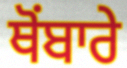
ਥੋਂਬਾਰੇ